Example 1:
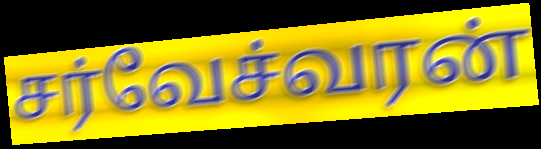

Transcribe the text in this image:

சர்வேச்வரன்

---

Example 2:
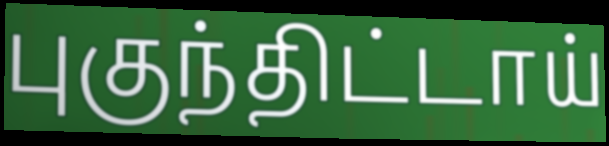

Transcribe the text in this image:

புகுந்திட்டாய்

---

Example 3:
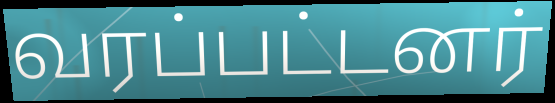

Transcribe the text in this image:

வரப்பட்டனர்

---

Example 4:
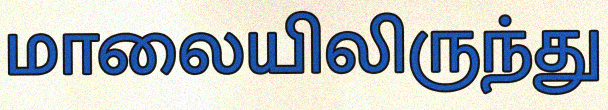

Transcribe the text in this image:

மாலையிலிருந்து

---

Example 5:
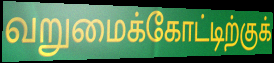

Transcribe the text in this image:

வறுமைக்கோட்டிற்குக்